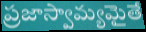
ప్రజాస్వామ్యమైతే